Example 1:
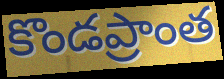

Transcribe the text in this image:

కొండప్రాంత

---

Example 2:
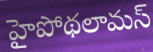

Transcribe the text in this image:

హైపోథలామస్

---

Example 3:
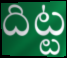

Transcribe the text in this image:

దిట్ట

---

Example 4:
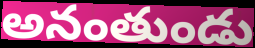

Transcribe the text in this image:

అనంతుండు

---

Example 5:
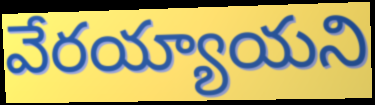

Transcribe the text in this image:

వేరయ్యాయని